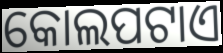
କୋଲପଟାଏ